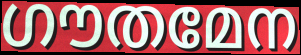
ഗൗതമേന